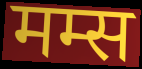
मम्स